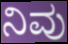
ನಿವು